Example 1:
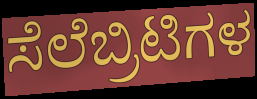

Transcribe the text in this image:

ಸೆಲೆಬ್ರಿಟಿಗಳ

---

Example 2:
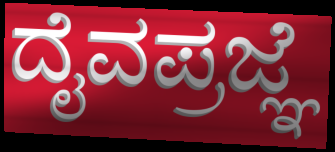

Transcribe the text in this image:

ದೈವಪ್ರಜ್ಞೆ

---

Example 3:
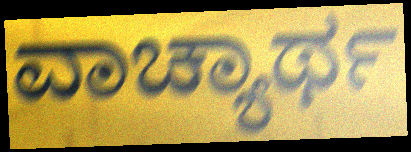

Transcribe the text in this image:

ವಾಚ್ಯಾರ್ಥ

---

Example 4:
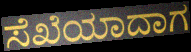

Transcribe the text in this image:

ಸೆಖೆಯಾದಾಗ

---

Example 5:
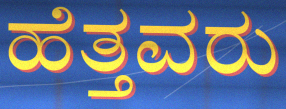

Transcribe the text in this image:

ಹೆತ್ತವರು